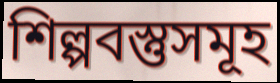
শিল্পবস্তুসমূহ